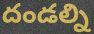
దండల్ని